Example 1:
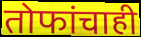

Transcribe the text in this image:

तोफांचाही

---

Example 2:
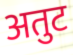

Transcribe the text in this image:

अतुट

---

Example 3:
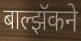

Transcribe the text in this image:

बाल्झॅकने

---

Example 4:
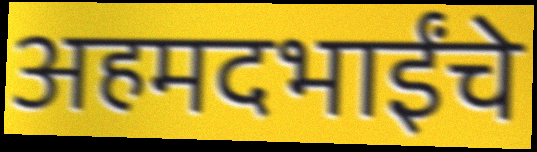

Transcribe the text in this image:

अहमदभाईंचे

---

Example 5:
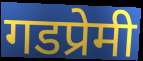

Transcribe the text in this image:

गडप्रेमी